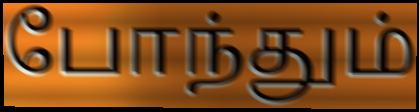
போந்தும்